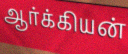
ஆர்க்கியன்